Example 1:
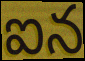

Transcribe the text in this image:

ఐన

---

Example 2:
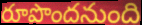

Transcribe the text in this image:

రూపొందనుంది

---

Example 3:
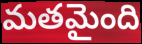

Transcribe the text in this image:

మతమైంది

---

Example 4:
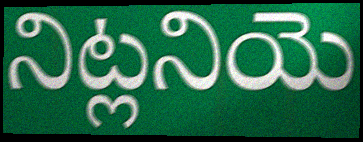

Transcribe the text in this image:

నిట్లనియె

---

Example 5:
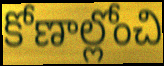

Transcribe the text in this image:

కోణాల్లోంచి